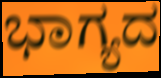
ಭಾಗ್ಯದ